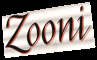
Zooni